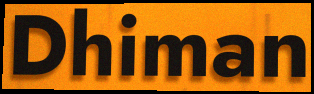
Dhiman